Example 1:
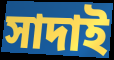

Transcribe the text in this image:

সাদাই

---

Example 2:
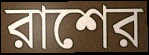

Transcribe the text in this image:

রাশের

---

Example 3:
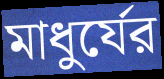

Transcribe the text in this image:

মাধুর্যের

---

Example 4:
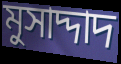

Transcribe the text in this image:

মুসাদ্দাদ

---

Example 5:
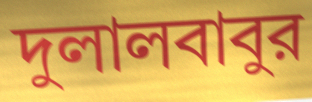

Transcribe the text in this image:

দুলালবাবুর